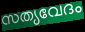
സത്യവേദം